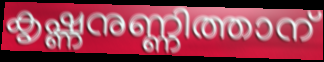
കൃഷ്ണനുണ്ണിത്താന്